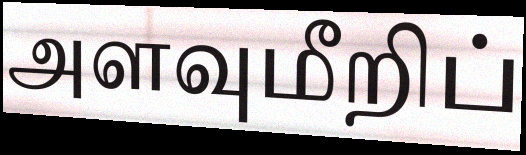
அளவுமீறிப்